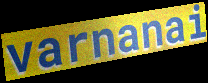
varnanai